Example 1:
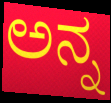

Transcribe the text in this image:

ಅನ್ನ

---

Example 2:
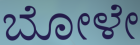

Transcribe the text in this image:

ಬೋಳೇ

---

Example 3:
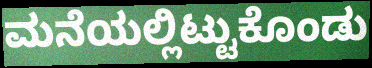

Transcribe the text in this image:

ಮನೆಯಲ್ಲಿಟ್ಟುಕೊಂಡು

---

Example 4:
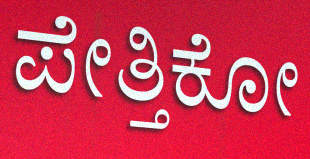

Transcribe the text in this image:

ಪೇತ್ತಿಕೋ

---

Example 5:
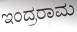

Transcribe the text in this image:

ಇಂದ್ರರಾಮ